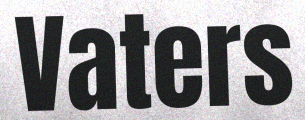
Vaters